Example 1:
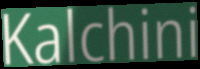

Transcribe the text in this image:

Kalchini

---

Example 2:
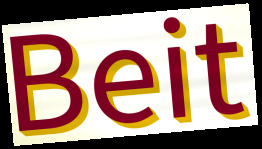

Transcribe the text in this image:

Beit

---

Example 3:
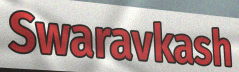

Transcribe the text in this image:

Swaravkash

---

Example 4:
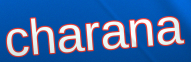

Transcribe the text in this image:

charana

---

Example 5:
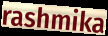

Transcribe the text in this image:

rashmika